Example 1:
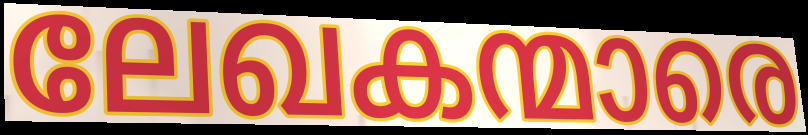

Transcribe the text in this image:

ലേഖകന്മാരെ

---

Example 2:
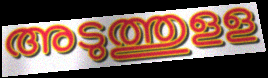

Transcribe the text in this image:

അടുത്തുളള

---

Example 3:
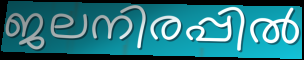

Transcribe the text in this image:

ജലനിരപ്പിൽ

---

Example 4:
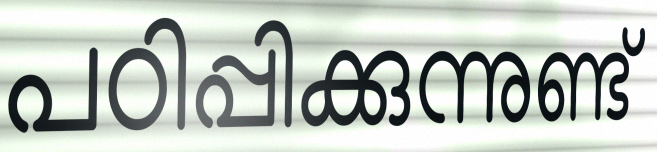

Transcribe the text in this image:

പഠിപ്പിക്കുന്നുണ്ട്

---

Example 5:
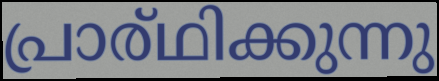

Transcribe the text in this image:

പ്രാര്ഥിക്കുന്നു